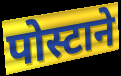
पोस्टाने